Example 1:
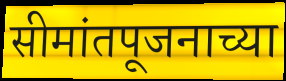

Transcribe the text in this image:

सीमांतपूजनाच्या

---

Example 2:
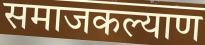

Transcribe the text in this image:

समाजकल्याण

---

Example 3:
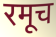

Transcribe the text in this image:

रमूच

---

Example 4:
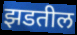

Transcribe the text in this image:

झडतील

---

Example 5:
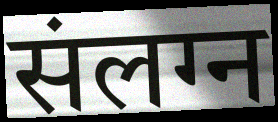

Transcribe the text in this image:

संलग्‍न